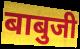
बाबुजी